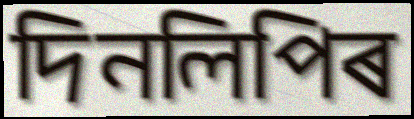
দিনলিপিৰ